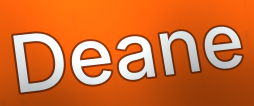
Deane